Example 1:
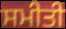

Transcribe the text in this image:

ਸਮੀਤੀ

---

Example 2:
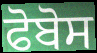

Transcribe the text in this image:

ਫੋਬੋਸ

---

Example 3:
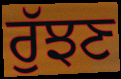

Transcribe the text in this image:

ਰੁੱਝਣ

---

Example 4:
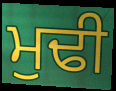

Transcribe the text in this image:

ਮੁਢੀ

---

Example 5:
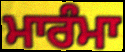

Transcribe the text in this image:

ਮਾਰੰਮਾ